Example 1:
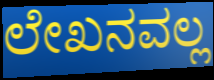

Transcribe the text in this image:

ಲೇಖನವಲ್ಲ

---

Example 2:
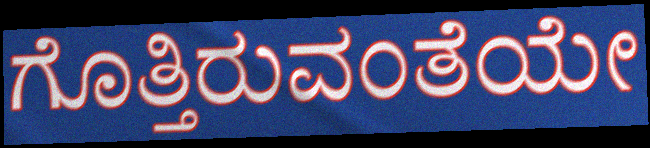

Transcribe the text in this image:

ಗೊತ್ತಿರುವಂತೆಯೇ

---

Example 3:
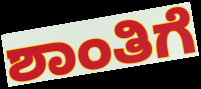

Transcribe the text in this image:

ಶಾಂತಿಗೆ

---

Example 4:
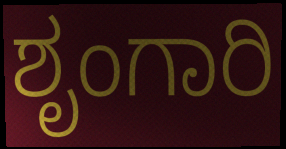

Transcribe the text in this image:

ಶೃಂಗಾರಿ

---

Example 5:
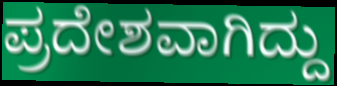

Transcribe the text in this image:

ಪ್ರದೇಶವಾಗಿದ್ದು